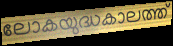
ലോകയുദ്ധകാലത്ത്